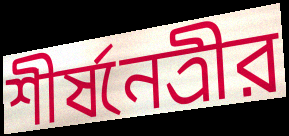
শীর্ষনেত্রীর